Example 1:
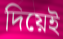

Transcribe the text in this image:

দিয়েই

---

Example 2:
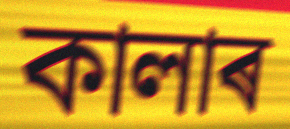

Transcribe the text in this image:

কালাৰ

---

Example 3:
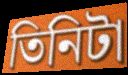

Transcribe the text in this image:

তিনিটা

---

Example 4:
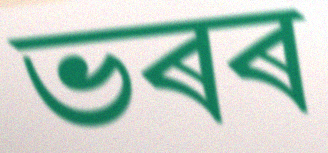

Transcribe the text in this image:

ভৰৰ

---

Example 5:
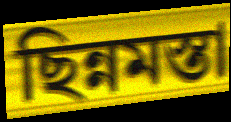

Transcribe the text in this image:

ছিন্নমস্তা